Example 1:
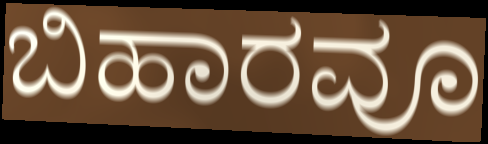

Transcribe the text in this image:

ಬಿಹಾರವೂ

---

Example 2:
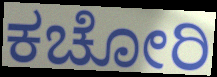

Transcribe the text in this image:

ಕಚೋರಿ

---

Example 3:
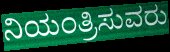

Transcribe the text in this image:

ನಿಯಂತ್ರಿಸುವರು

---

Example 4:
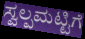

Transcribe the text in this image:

ಸ್ವಲ್ಪಮಟ್ಟಿಗೆ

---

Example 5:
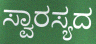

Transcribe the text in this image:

ಸ್ವಾರಸ್ಯದ